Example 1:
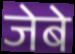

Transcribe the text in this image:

जेबे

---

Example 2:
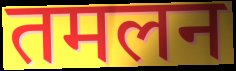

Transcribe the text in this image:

तमलन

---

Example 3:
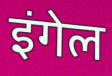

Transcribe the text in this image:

इंगेल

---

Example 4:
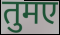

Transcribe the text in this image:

तुमए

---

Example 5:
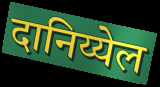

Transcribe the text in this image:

दानिय्येल